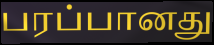
பரப்பானது